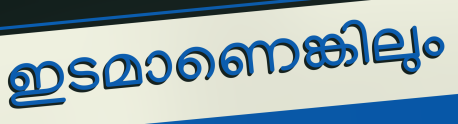
ഇടമാണെങ്കിലും